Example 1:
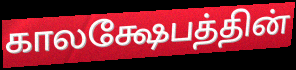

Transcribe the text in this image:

காலக்ஷேபத்தின்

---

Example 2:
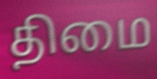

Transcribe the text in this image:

திமை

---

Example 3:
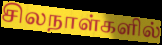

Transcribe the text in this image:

சிலநாள்களில்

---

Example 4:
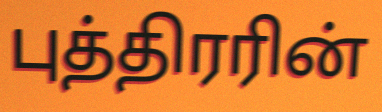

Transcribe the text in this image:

புத்திரரின்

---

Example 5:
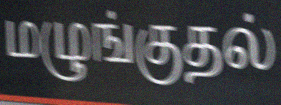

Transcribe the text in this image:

மழுங்குதல்